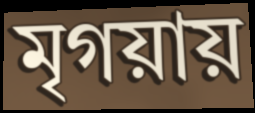
মৃগয়ায়